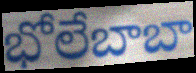
భోలేబాబా